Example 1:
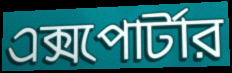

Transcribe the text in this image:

এক্সপোর্টার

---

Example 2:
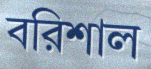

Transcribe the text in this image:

বরিশাল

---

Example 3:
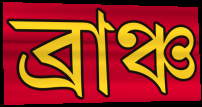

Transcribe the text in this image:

ব্রাঞ্চ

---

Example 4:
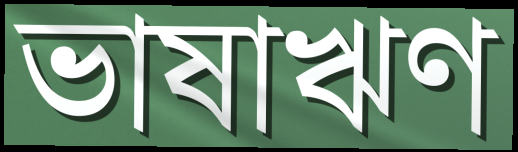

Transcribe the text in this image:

ভাষাঋণ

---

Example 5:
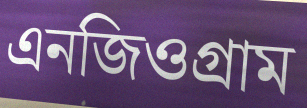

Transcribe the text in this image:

এনজিওগ্রাম